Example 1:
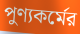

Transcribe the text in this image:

পুণ্যকর্মের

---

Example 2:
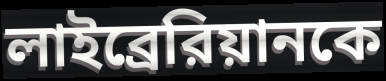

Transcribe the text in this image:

লাইব্রেরিয়ানকে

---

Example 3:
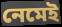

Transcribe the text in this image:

নেমেই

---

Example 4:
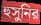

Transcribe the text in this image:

হুসুনির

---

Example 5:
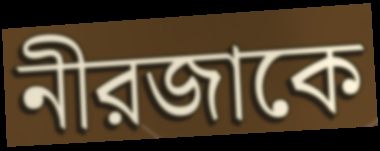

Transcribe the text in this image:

নীরজাকে